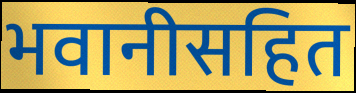
भवानीसहित